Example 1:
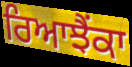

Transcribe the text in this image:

ਰਿਆਝੈਂਕਾ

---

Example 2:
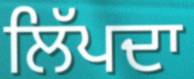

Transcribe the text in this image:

ਲਿੱਪਦਾ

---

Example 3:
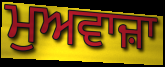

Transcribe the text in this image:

ਮੁਅਵਾਜ਼ਾ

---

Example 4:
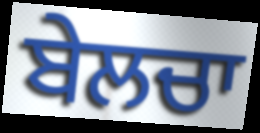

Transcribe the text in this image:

ਬੇਲਚਾ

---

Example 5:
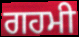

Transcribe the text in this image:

ਗਹਮੀ